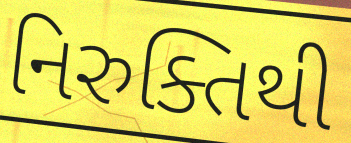
નિરુક્તિથી